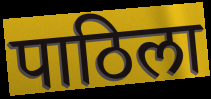
पाठिला